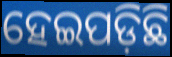
ହେଇପଡ଼ିଛି